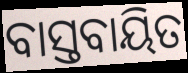
ବାସ୍ତବାୟିତ